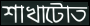
শাখাটোত